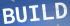
BUILD